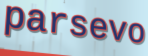
parsevo